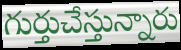
గుర్తుచేస్తున్నారు